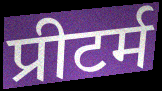
प्रीटर्म